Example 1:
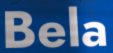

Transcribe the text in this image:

Bela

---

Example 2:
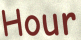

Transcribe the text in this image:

Hour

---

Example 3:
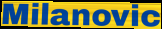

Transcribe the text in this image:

Milanovic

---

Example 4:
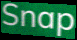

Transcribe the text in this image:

Snap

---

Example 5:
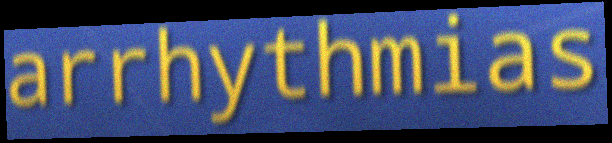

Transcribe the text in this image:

arrhythmias